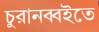
চুরানব্বইতে